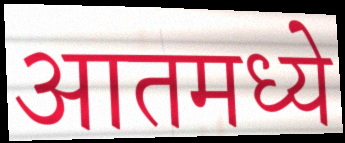
आतमध्ये